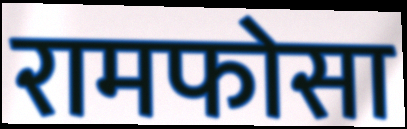
रामफोसा